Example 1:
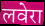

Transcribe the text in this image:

लवेरा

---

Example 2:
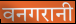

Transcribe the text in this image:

वनगरानी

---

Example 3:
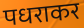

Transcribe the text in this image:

पधराकर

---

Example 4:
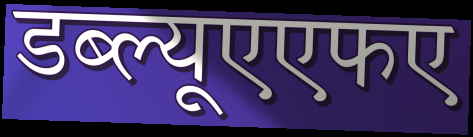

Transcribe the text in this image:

डब्ल्यूएएफए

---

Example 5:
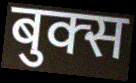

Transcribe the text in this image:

बुक्‍स